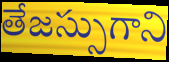
తేజస్సుగాని